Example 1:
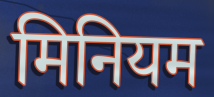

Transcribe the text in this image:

मिनियम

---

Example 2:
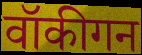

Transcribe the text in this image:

वॉकीगन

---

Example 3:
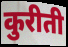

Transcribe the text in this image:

कुरीती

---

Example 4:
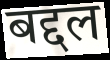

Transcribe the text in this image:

बद्दल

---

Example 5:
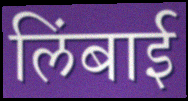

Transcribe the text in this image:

लिंबाई